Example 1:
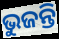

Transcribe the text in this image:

ଭୁଜନ୍ତି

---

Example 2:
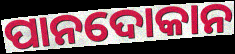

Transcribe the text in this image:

ପାନଦୋକାନ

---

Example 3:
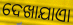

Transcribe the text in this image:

ଦେଖାଯାଏା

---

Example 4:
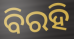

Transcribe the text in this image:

ବିରହି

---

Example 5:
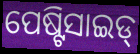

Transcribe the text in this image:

ପେଷ୍ଟିସାଇଡ୍